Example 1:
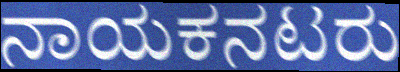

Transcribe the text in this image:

ನಾಯಕನಟರು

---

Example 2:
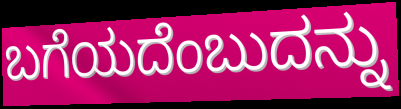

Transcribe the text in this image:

ಬಗೆಯದೆಂಬುದನ್ನು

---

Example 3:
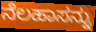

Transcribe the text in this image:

ನೆಲಹಾಸನ್ನು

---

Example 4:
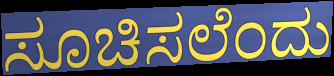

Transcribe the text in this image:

ಸೂಚಿಸಲೆಂದು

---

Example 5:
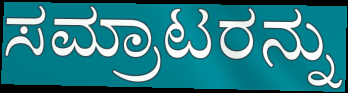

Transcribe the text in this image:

ಸಮ್ರಾಟರನ್ನು